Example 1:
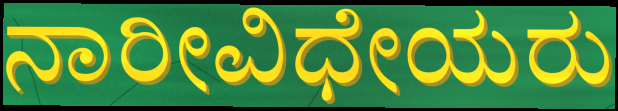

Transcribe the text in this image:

ನಾರೀವಿಧೇಯರು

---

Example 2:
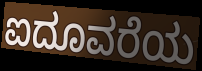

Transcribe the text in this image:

ಐದೂವರೆಯ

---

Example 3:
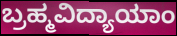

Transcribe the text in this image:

ಬ್ರಹ್ಮವಿದ್ಯಾಯಾಂ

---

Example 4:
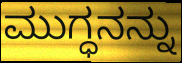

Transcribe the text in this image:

ಮುಗ್ಧನನ್ನು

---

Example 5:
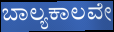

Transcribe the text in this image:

ಬಾಲ್ಯಕಾಲವೇ